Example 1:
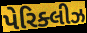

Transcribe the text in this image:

પેરિક્લીઝ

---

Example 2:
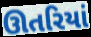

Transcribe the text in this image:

ઊતરિયાં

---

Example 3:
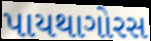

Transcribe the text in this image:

પાયથાગોરસ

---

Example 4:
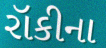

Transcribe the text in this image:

રૉકીના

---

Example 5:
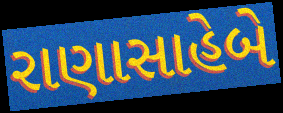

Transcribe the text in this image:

રાણાસાહેબે